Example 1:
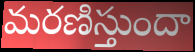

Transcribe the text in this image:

మరణిస్తుందా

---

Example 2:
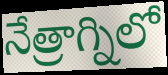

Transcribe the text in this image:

నేత్రాగ్నిలో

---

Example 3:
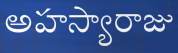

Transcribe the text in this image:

అహస్యారాజు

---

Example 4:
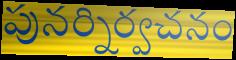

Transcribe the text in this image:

పునర్నిర్వచనం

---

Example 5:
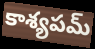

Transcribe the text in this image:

కాశ్యపమ్